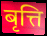
बृत्ति